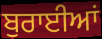
ਬੁਰਾਈਆਂ